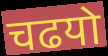
चढयो